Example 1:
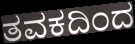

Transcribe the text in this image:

ತವಕದಿಂದ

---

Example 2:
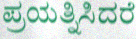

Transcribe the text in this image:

ಪ್ರಯತ್ನಿಸಿದರೆ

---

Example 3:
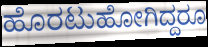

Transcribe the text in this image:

ಹೊರಟುಹೋಗಿದ್ದರೂ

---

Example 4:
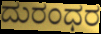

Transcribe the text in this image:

ದುರಂಧರ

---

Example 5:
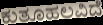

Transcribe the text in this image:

ಕುತೂಹಲವಿದೆ